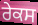
ਰੇਕਸ